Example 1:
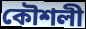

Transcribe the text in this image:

কৌশলী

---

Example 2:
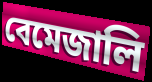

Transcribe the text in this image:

বেমেজালি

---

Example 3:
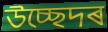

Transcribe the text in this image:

উচ্ছেদৰ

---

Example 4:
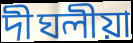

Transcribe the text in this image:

দীঘলীয়া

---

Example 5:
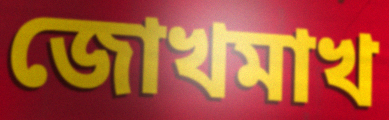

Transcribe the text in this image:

জোখমাখ